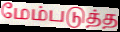
மேம்படுத்த